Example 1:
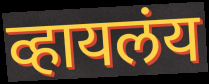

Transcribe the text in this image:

व्हायलंय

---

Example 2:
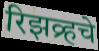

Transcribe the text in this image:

रिझव्र्हचे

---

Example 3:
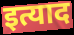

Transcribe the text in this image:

इत्याद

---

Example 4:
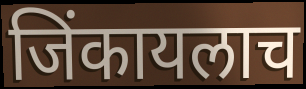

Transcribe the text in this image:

जिंकायलाच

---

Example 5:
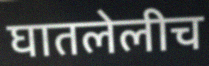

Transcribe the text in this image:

घातलेलीच